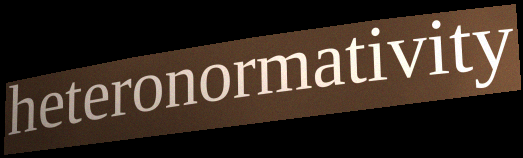
heteronormativity